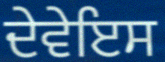
ਦੇਵੇਇਸ